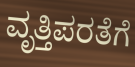
ವೃತ್ತಿಪರತೆಗೆ